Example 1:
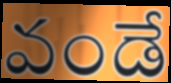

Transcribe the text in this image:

వండే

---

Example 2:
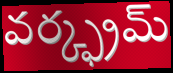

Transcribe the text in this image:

వర్క్ఫ్రమ్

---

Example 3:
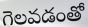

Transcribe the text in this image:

గెలవడంతో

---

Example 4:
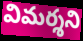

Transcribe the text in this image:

విమర్శని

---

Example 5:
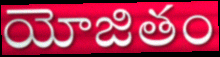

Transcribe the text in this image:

యోజితం